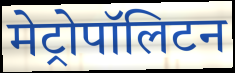
मेट्रोपॉलिटन